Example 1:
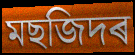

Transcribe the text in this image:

মছজিদৰ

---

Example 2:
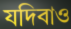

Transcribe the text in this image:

যদিবাও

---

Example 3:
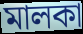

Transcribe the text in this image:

মালকা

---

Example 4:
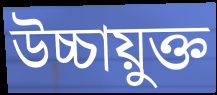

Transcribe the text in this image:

উচ্চায়ুক্ত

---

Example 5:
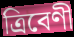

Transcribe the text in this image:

ত্ৰিবেণী